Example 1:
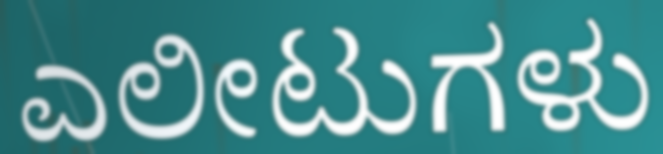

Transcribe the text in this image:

ಎಲೀಟುಗಳು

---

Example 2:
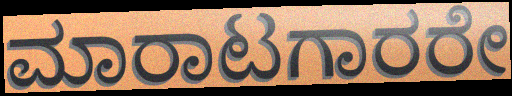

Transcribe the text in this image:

ಮಾರಾಟಗಾರರೇ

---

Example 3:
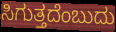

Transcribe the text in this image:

ಸಿಗುತ್ತದೆಂಬುದು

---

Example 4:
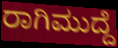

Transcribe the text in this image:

ರಾಗಿಮುದ್ದೆ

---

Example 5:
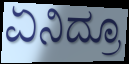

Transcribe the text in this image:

ಏನಿದ್ರೂ